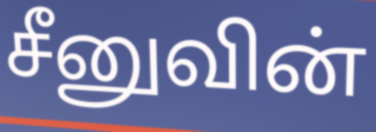
சீனுவின்